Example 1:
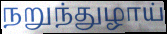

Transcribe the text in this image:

நறுந்துழாய்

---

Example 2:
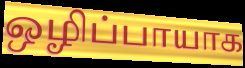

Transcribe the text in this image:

ஒழிப்பாயாக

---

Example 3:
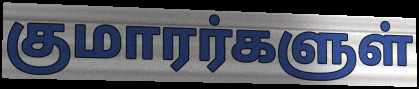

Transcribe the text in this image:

குமாரர்களுள்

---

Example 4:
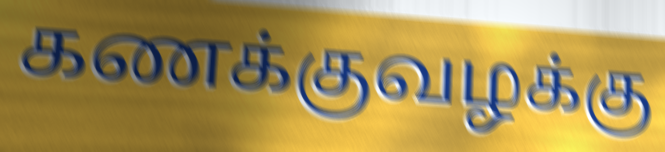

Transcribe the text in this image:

கணக்குவழக்கு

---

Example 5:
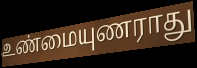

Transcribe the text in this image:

உண்மையுணராது